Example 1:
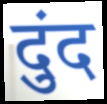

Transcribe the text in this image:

दुंद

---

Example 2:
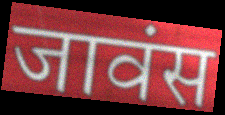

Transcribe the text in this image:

जावंस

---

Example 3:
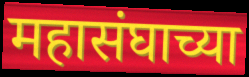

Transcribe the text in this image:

महासंघाच्या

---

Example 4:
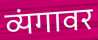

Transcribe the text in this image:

व्यंगावर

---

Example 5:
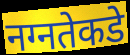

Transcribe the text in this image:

नग्नतेकडे